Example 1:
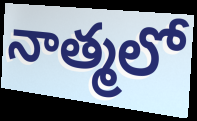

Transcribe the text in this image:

నాత్మలో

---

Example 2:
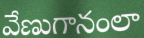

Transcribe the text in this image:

వేణుగానంలా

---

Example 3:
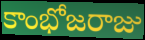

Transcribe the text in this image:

కాంభోజరాజు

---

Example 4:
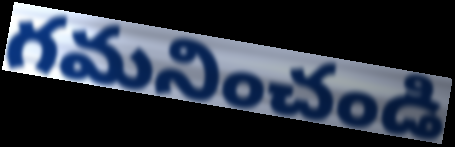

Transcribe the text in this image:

గమనించండి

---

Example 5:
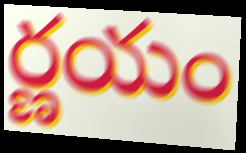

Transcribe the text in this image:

ర్ణయం